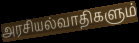
அரசியல்வாதிகளும்